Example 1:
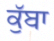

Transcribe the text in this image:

ਕੁੱਬਾ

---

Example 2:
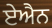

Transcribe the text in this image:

ਏਐਨ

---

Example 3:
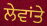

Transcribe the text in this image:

ਲੇਵਾਂਤੇ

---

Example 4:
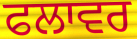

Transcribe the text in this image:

ਫਲਾਵਰ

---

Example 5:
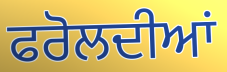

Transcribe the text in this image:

ਫਰੋਲਦੀਆਂ